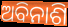
ଅବିନାଶି